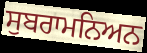
ਸੁਬਰਾਮਨਿਅਨ